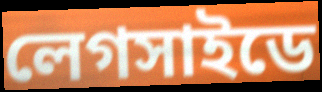
লেগসাইডে